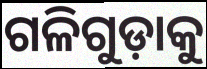
ଗଳିଗୁଡ଼ାକୁ